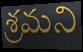
శ్రమని